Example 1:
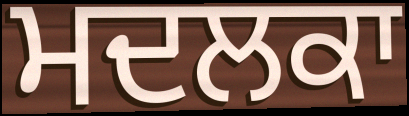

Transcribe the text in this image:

ਮਦਲਕਾ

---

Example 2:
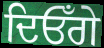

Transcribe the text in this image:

ਦਿਓਁਗੇ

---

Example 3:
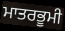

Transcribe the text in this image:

ਮਾਤਰਭੂਮੀ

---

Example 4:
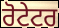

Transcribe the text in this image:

ਰੋਟੇਟਰ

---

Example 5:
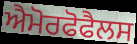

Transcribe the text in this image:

ਐਮੋਰਫੋਫੈਲਸ